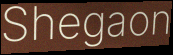
Shegaon